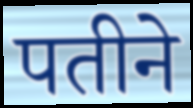
पतीने